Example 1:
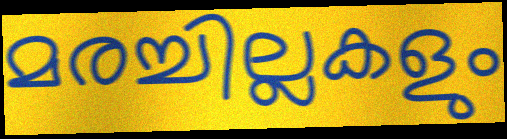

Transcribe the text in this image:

മരച്ചില്ലകളും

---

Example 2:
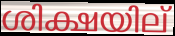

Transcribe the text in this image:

ശിക്ഷയില്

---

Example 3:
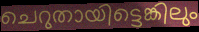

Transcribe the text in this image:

ചെറുതായിട്ടെങ്കിലും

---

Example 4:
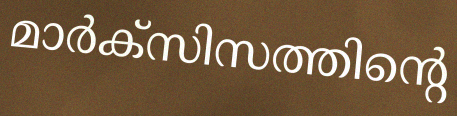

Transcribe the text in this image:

മാർക്സിസത്തിന്റെ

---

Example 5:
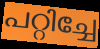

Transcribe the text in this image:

പറ്റിച്ചേ